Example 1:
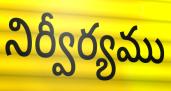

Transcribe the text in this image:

నిర్వీర్యము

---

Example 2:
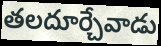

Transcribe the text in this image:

తలదూర్చేవాడు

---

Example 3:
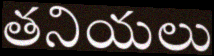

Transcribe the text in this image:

తనియలు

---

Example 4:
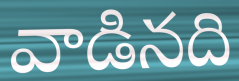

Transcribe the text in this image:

వాడినది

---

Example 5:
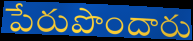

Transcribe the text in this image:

పేరుపొందారు